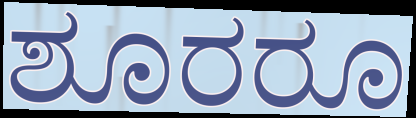
ಶೂರರೂ